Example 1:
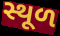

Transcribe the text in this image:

સ્થૂળ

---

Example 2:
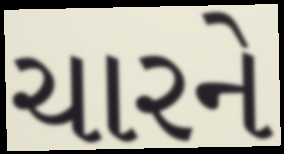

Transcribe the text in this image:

ચારને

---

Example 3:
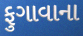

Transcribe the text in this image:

ફુગાવાના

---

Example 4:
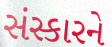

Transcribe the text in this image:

સંસ્કારને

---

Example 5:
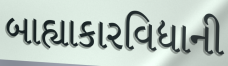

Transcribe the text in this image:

બાહ્યાકારવિદ્યાની